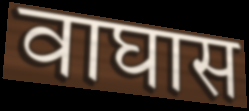
वाघास